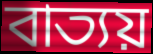
বাত্যয়